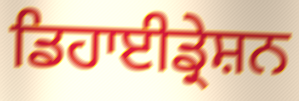
ਡਿਹਾਈਡ੍ਰੇਸ਼ਨ